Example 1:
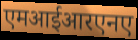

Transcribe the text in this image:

एमआईआरएनए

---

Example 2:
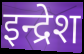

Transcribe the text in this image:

इन्द्रेश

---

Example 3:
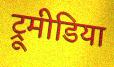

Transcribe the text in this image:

ट्रूमीडिया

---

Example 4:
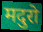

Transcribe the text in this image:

मदुरो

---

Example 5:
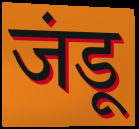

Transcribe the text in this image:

जंडू